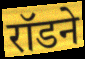
रॉडने